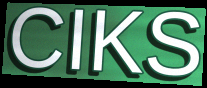
CIKS